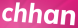
chhan